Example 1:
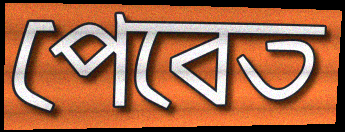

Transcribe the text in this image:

পেবেত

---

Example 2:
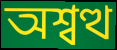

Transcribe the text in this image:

অশ্বত্থ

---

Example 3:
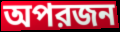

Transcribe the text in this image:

অপরজন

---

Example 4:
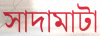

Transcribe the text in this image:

সাদামাটা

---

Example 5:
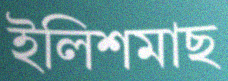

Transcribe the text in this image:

ইলিশমাছ